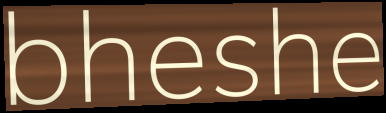
bheshe